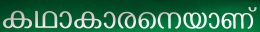
കഥാകാരനെയാണ്